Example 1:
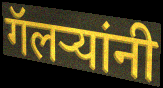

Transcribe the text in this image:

गॅलऱ्यांनी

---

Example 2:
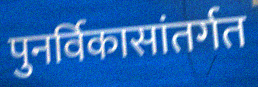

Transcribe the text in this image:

पुनर्विकासांतर्गत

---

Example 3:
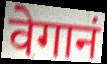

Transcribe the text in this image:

वेगानं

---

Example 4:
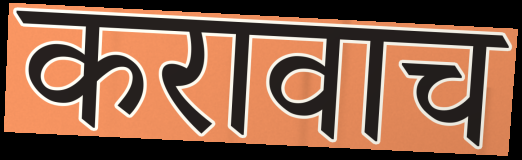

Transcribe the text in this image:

करावाच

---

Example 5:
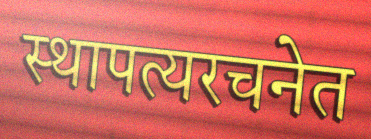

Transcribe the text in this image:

स्थापत्यरचनेत